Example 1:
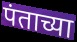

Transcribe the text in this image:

पंताच्या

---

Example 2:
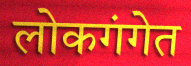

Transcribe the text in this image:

लोकगंगेत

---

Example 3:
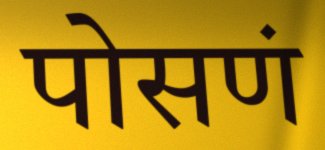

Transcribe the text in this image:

पोसणं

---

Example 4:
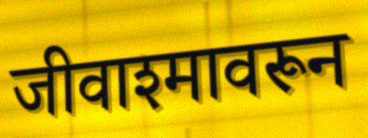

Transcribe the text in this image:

जीवाश्मावरून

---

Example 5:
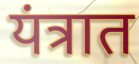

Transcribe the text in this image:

यंत्रात